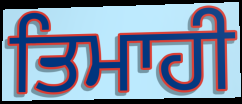
ਤਿਮਾਹੀ